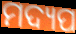
ମଦ୍ୟପ